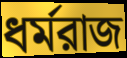
ধর্মরাজ